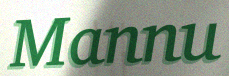
Mannu